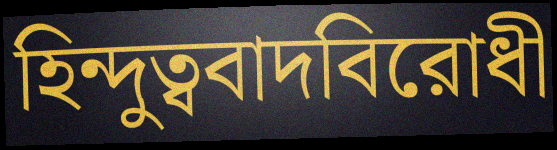
হিন্দুত্ববাদবিরোধী